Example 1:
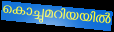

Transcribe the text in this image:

കൊച്ചുമറിയയിൽ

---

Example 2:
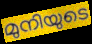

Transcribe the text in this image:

മുനിയുടെ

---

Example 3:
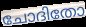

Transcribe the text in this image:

ചോദിതോ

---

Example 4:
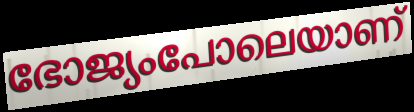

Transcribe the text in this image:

ഭോജ്യംപോലെയാണ്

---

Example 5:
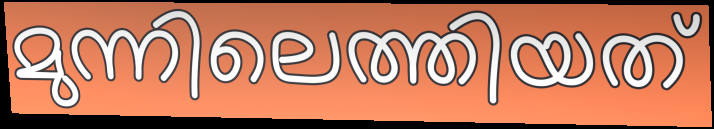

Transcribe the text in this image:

മുന്നിലെത്തിയത്